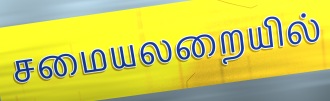
சமையலறையில்